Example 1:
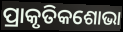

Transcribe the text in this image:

ପ୍ରାକୃତିକଶୋଭା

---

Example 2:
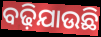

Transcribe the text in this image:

ବଢ଼ିଯାଉଛି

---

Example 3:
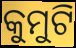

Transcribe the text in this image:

କୁମୁଟି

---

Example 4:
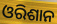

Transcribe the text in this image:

ଓରିଶାନ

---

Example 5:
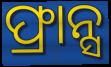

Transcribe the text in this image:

ଫ୍ରାନ୍ସ